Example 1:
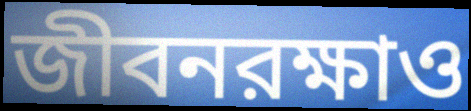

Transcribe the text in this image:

জীবনরক্ষাও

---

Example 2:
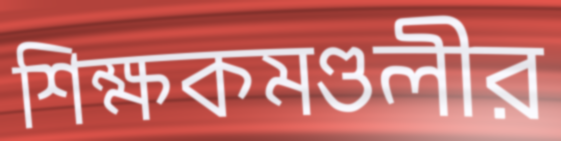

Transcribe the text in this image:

শিক্ষকমণ্ডলীর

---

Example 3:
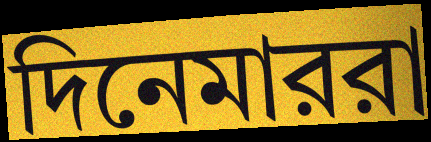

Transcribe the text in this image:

দিনেমাররা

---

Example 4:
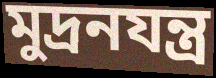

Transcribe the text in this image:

মুদ্রনযন্ত্র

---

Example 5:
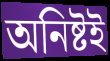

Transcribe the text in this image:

অনিষ্টই